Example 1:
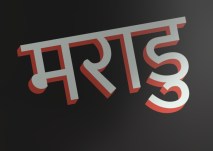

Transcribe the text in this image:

मराडु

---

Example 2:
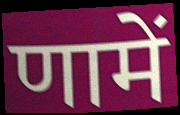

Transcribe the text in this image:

णामें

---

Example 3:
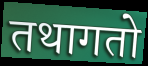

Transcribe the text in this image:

तथागतो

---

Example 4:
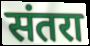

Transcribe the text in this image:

संतरा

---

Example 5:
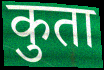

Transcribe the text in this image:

कुता